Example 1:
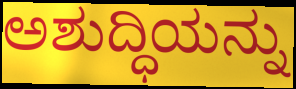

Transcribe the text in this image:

ಅಶುದ್ಧಿಯನ್ನು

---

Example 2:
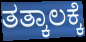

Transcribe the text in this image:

ತತ್ಕಾಲಕ್ಕೆ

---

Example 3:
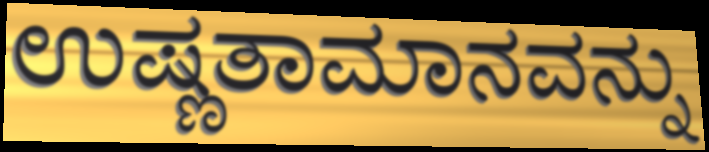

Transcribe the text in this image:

ಉಷ್ಣತಾಮಾನವನ್ನು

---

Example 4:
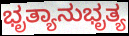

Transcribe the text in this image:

ಭೃತ್ಯಾನುಭೃತ್ಯ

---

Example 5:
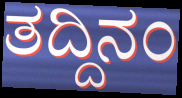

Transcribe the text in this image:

ತದ್ದಿನಂ